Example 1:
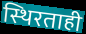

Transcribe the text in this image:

स्थिरताही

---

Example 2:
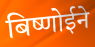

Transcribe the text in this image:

बिष्णोईने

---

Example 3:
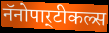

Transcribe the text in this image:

नॅनोपार्टीकल्स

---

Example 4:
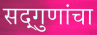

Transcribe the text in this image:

सद्‍गुणांचा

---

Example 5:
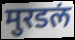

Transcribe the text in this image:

मुरडलं